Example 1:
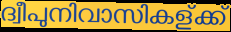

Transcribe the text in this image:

ദ്വീപുനിവാസികള്ക്ക്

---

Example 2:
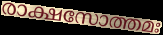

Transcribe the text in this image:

രാക്ഷസോത്തമഃ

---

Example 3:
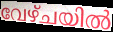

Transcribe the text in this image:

വേഴ്ചയിൽ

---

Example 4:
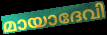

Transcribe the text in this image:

മായാദേവി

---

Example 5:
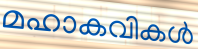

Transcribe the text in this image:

മഹാകവികൾ